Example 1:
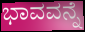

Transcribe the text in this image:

ಭಾವವನ್ನೆ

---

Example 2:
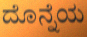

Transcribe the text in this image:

ದೊನ್ನೆಯ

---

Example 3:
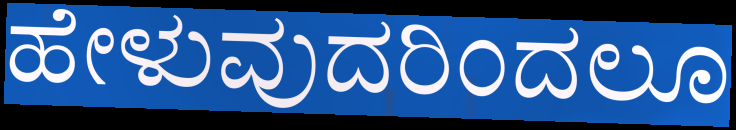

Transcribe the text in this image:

ಹೇಳುವುದರಿಂದಲೂ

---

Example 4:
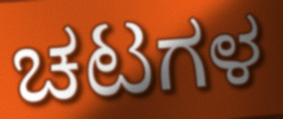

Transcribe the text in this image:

ಚಟಗಳ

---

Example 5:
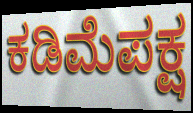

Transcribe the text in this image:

ಕಡಿಮೆಪಕ್ಷ